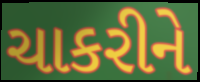
ચાકરીને